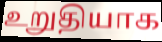
உறுதியாக